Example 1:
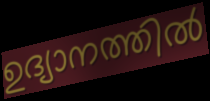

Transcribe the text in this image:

ഉദ്യാനത്തിൽ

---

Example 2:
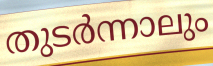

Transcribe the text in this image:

തുടർന്നാലും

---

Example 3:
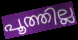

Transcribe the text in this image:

പൂത്തില്ല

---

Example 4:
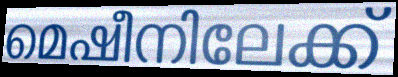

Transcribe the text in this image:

മെഷീനിലേക്ക്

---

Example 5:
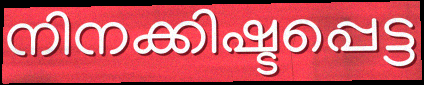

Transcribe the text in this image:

നിനക്കിഷ്ടപ്പെട്ട